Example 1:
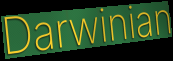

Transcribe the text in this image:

Darwinian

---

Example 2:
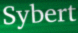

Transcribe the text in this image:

Sybert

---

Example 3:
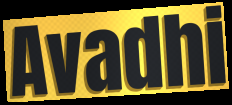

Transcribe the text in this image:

Avadhi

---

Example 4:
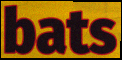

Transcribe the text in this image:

bats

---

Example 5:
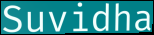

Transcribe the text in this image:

Suvidha